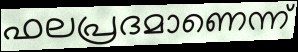
ഫലപ്രദമാണെന്ന്